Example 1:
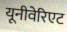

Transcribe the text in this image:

यूनीवेरिएट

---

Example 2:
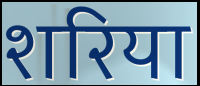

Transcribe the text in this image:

शरिया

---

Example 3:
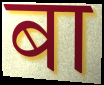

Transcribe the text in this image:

बा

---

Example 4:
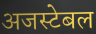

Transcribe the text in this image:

अजस्टेबल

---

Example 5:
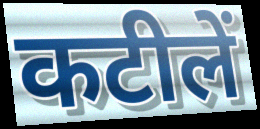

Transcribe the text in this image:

कटीलें